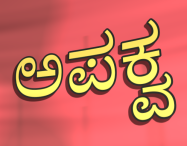
ಅಪಕ್ವ